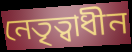
নেতৃত্বাধীন